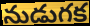
నుడుగక